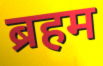
ब्रहम